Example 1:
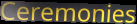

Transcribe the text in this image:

Ceremonies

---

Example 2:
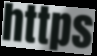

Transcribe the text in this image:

https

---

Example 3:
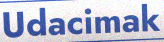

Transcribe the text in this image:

Udacimak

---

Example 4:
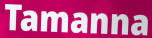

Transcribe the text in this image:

Tamanna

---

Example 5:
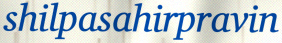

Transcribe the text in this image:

shilpasahirpravin